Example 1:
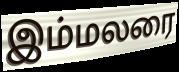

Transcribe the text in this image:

இம்மலரை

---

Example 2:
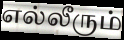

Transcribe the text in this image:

எல்லீரும்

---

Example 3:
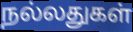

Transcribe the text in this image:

நல்லதுகள்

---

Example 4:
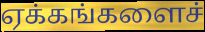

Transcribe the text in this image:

ஏக்கங்களைச்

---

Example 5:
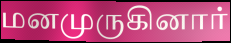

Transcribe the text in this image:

மனமுருகினார்